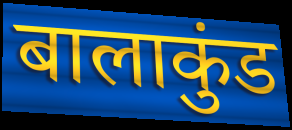
बालाकुंड